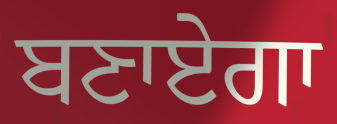
ਬਣਾਏਗਾ